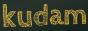
kudam